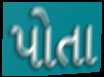
પોતા